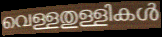
വെള്ളതുള്ളികൾ